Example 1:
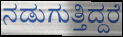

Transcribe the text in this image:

ನಡುಗುತ್ತಿದ್ದರೆ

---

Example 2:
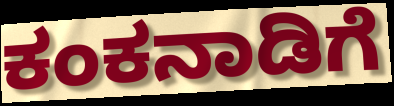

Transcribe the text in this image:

ಕಂಕನಾಡಿಗೆ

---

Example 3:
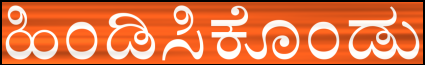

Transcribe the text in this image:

ಹಿಂಡಿಸಿಕೊಂಡು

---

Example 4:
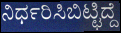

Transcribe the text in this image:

ನಿರ್ಧರಿಸಿಬಿಟ್ಟಿದ್ದೆ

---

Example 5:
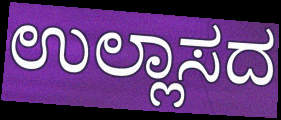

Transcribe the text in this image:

ಉಲ್ಲಾಸದ